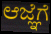
ಆಜ್ಞೆಗೆ